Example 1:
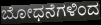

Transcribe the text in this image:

ಬೋಧನೆಗಳಿಂದ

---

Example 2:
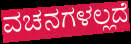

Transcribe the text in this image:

ವಚನಗಳಲ್ಲದೆ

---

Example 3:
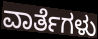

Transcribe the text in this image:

ವಾರ್ತೆಗಳು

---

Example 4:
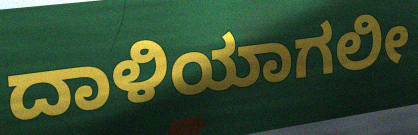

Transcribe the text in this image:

ದಾಳಿಯಾಗಲೀ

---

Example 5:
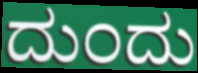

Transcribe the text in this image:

ದುಂದು